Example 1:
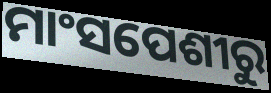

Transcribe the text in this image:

ମାଂସପେଶୀରୁ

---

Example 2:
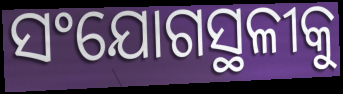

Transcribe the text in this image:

ସଂଯୋଗସ୍ଥଳୀକୁ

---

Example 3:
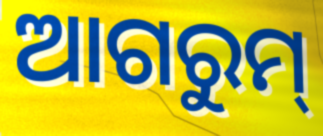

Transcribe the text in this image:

ଆଗରୁମ୍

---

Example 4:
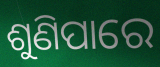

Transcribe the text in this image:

ଶୁଣିପାରେ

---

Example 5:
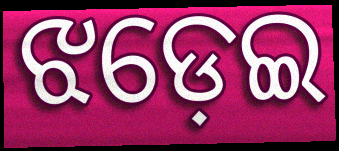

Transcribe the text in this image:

ଝଡ଼େଇ